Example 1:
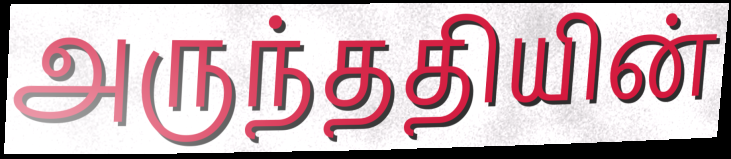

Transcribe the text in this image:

அருந்ததியின்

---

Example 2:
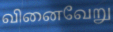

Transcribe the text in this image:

வினைவேறு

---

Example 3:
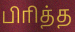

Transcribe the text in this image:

பிரித்த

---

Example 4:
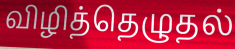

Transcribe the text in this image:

விழித்தெழுதல்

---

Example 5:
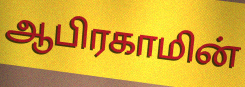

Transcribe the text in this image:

ஆபிரகாமின்